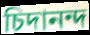
চিদানন্দ